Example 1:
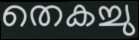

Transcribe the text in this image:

തെകച്ചു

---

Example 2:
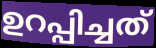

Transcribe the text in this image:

ഉറപ്പിച്ചത്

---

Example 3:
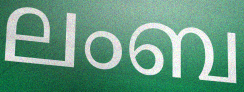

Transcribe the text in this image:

ലംബ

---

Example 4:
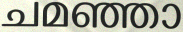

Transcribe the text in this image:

ചമഞ്ഞാ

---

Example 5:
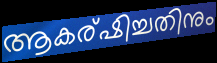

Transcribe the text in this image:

ആകര്ഷിച്ചതിനും